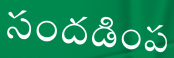
సందడింప